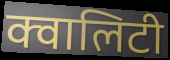
क्‍वालिटी